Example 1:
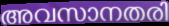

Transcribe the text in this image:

അവസാനതരി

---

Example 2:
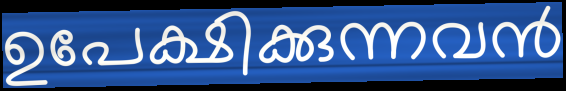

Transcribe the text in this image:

ഉപേക്ഷിക്കുന്നവൻ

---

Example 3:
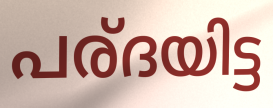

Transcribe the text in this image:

പര്ദയിട്ട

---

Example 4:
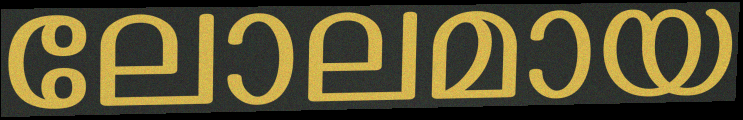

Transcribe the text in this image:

ലോലമായ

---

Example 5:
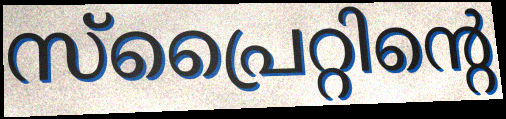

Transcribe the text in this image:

സ്പ്രൈറ്റിന്റെ